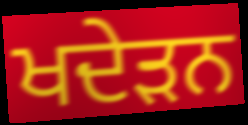
ਖਦੇੜਨ